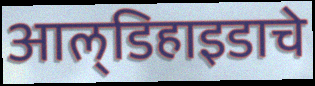
आल्डिहाइडाचे